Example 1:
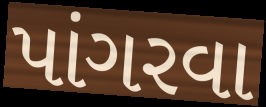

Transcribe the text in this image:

પાંગરવા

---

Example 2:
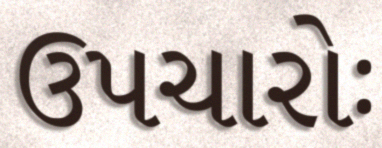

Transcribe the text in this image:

ઉપચારોઃ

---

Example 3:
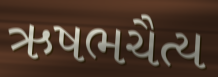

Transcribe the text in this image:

ઋષભચૈત્ય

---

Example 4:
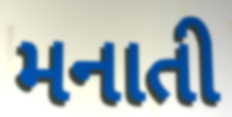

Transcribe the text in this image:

મનાતી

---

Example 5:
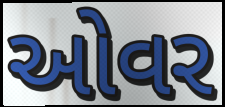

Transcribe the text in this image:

ઓવર